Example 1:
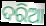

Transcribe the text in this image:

ଦରିଆ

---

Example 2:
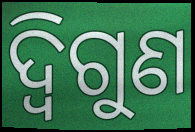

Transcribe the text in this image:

ଦ୍ୱିଗୁଣ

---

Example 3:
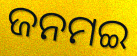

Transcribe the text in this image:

ଜନମଇ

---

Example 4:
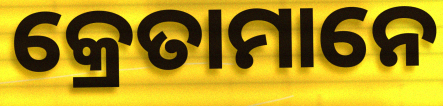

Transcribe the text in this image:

କ୍ରେତାମାନେ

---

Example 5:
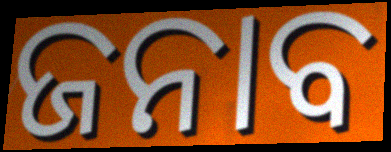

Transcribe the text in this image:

ଜନାବ